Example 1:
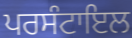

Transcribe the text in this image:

ਪਰਸੰਟਾਇਲ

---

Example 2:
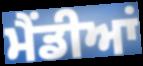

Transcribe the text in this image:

ਮੈਂਡੀਆਂ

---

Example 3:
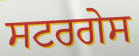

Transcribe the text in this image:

ਸਟਰਗੇਸ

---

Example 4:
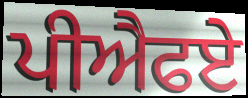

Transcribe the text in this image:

ਪੀਐਫਏ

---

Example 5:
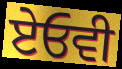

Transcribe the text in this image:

ਏਓਵੀ